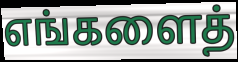
எங்களைத்